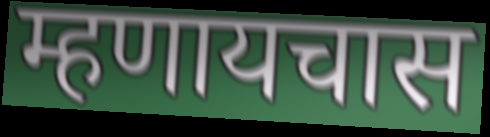
म्हणायचास